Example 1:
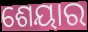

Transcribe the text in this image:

ଶେୟାର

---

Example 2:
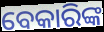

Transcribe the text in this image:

ବେକାରିଙ୍କ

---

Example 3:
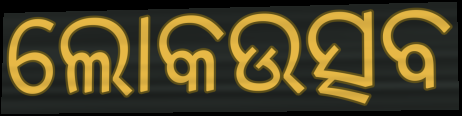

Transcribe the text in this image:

ଲୋକଉତ୍ସବ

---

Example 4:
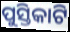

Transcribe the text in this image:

ପୁସ୍ତିକାଟି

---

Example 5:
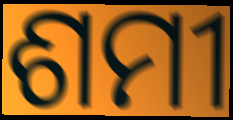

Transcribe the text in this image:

ଶମୀ